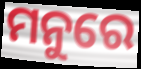
ମନୁରେ